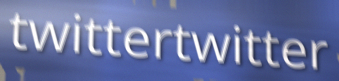
twittertwitter